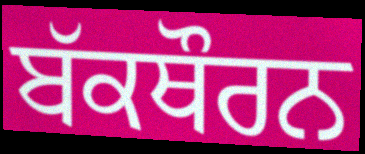
ਬੱਕਥੌਰਨ